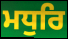
ਮਧੁਰਿ